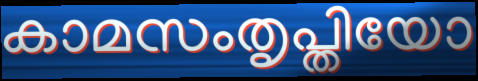
കാമസംതൃപ്തിയോ